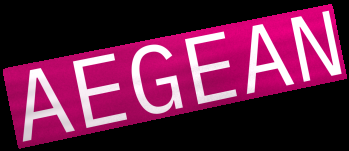
AEGEAN